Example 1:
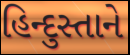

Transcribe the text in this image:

હિન્દુસ્તાને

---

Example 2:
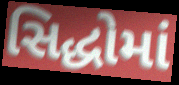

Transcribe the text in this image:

સિદ્ધોમાં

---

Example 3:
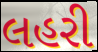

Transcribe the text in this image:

લહરી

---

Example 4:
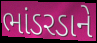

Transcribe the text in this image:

ભાંડરડાને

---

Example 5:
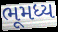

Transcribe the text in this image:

ભૂમધ્ય